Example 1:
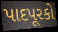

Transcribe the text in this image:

પાદપૂરકો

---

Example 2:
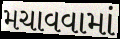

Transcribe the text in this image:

મચાવવામાં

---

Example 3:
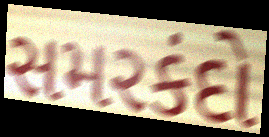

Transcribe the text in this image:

સમરકંદો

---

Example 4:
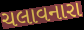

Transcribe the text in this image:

ચલાવનારા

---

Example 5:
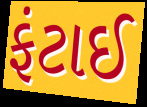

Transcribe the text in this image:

ફંટાઈ